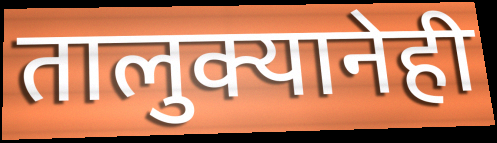
तालुक्यानेही